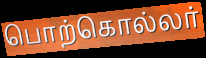
பொற்கொல்லர்